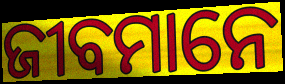
ଜୀବମାନେ